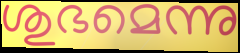
ശുഭമെന്നു